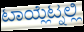
ಟಾಯ್ಲೆಟ್ನಲ್ಲಿ